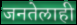
जनतेलाही